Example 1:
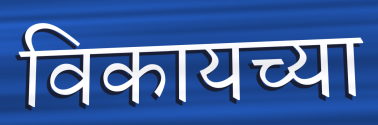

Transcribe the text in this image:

विकायच्या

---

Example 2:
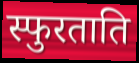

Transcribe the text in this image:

स्फुरताति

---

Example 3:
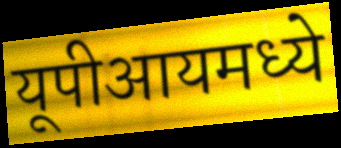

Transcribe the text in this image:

यूपीआयमध्ये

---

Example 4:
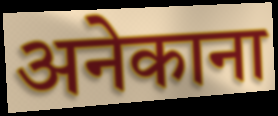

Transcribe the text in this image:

अनेकाना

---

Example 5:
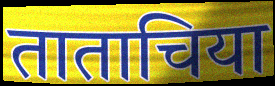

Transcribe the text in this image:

ताताचिया